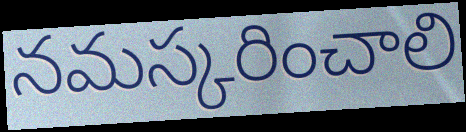
నమస్కరించాలి